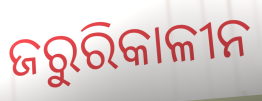
ଜରୁରିକାଳୀନ